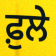
ਫ਼ੁਲੇ